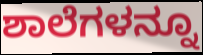
ಶಾಲೆಗಳನ್ನೂ